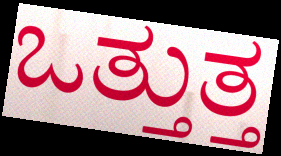
ಒತ್ತುತ್ತ